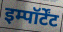
इम्पॉर्टेंट